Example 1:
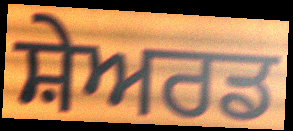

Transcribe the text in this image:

ਸ਼ੇਅਰਡ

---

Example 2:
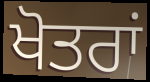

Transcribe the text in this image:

ਖੋਤਰਾਂ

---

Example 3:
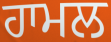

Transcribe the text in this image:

ਹਾਮਲ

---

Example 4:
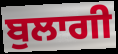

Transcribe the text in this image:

ਬੁਲਾਗੀ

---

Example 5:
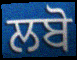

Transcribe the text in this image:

ਲਬੋ